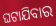
ଘଟାଯିବାର